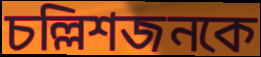
চল্লিশজনকে